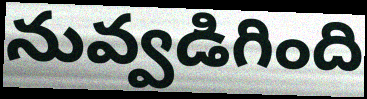
నువ్వడిగింది